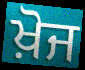
ਖ਼ੋਜ